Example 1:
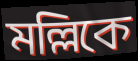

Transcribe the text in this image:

মল্লিকে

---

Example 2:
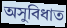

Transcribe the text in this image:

অসুবিধাত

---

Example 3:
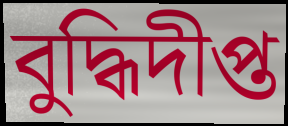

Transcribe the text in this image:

বুদ্ধিদীপ্ত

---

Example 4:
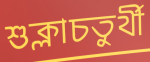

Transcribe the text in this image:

শুক্লাচতুৰ্থী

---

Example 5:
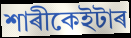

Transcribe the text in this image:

শাৰীকেইটাৰ